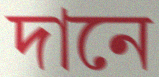
দানে